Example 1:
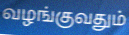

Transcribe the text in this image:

வழங்குவதும்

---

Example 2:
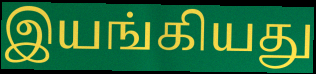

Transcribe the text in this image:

இயங்கியது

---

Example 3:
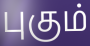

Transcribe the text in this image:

புகும்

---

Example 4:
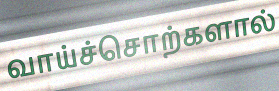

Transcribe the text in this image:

வாய்ச்சொற்களால்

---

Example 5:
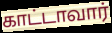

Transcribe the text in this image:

காட்டாவார்